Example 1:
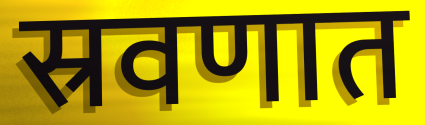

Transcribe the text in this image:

स्रवणात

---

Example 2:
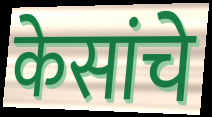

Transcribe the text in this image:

केसांचे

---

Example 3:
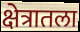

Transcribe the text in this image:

क्षेत्रातला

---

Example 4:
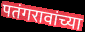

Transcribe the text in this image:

पतंगरावांच्या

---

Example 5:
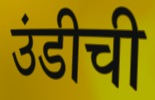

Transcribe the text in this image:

उंडीची